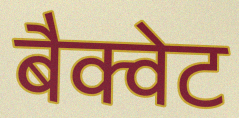
बैक्वेट